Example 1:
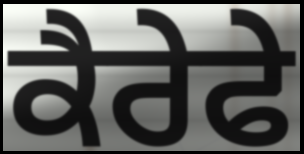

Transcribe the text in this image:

ਕੈਰੇਫੇ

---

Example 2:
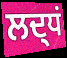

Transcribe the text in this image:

ਲਦ੍ਧਂ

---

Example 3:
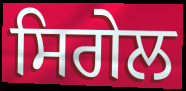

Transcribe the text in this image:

ਸਿਗੇਲ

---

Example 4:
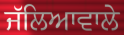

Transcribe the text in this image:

ਜੱਲਿਆਵਾਲੇ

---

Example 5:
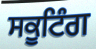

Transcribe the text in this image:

ਸਕੂਟਿੰਗ